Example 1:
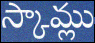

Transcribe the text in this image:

స్కామ్లు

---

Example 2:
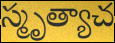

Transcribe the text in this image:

స్మృత్యాచ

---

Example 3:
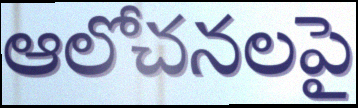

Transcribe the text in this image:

ఆలోచనలపై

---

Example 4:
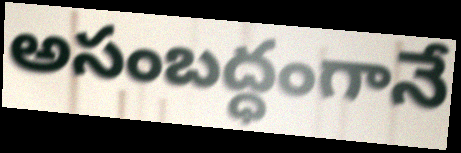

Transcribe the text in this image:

అసంబద్ధంగానే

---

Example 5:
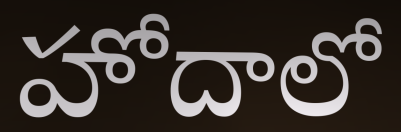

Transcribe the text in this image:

హోదాలో